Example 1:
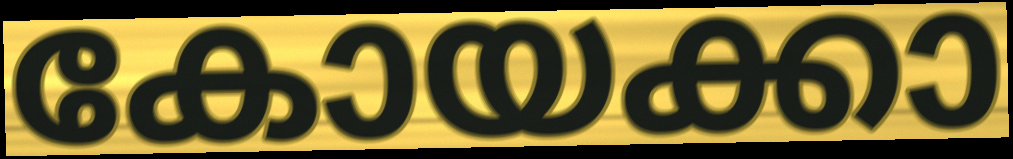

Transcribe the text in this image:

കോയക്കാ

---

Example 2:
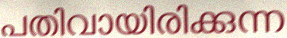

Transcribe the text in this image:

പതിവായിരിക്കുന്ന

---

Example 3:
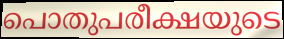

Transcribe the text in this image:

പൊതുപരീക്ഷയുടെ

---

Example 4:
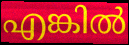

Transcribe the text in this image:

എങ്കിൽ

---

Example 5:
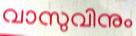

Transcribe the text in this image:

വാസുവിനും